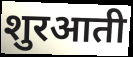
शुरआती